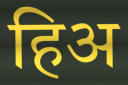
हिअ